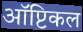
ऑप्टिकल